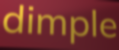
dimple